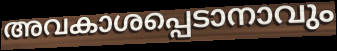
അവകാശപ്പെടാനാവും